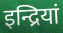
इन्द्रियां